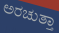
ಅರಚುತ್ತಾ